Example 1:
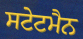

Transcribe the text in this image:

ਸਟੇਟਮੈਨ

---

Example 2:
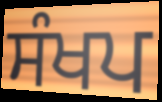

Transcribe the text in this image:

ਸੰਖਪ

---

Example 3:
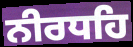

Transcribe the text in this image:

ਨੀਰਧਹਿ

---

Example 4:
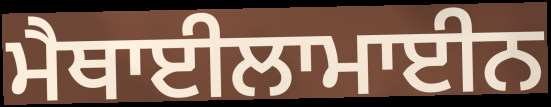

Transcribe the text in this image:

ਮੈਥਾਈਲਾਮਾਈਨ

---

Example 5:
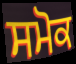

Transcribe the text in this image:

ਸਮੋਕ